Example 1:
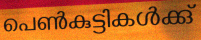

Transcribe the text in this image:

പെൺകുട്ടികൾക്കു്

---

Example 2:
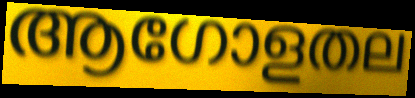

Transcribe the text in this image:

ആഗോളതല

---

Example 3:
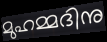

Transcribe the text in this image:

മുഹമ്മദിനു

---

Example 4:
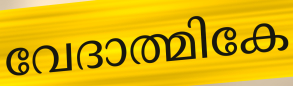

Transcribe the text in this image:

വേദാത്മികേ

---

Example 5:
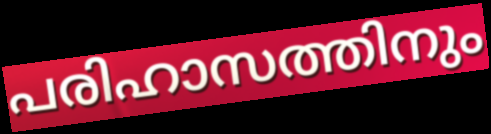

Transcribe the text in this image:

പരിഹാസത്തിനും